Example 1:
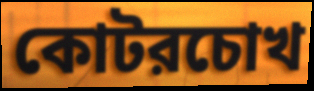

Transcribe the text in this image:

কোটরচোখ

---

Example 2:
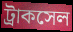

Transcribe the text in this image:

ট্রাকসেল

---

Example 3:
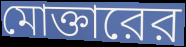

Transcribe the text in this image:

মোক্তারের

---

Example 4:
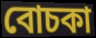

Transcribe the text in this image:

বোচকা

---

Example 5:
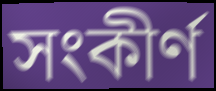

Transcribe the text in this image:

সংকীর্ণ